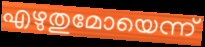
എഴുതുമോയെന്ന്